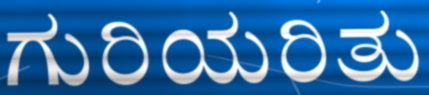
ಗುರಿಯರಿತು